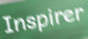
Inspirer